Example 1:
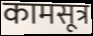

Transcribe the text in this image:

कामसूत्र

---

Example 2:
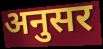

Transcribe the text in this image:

अनुसर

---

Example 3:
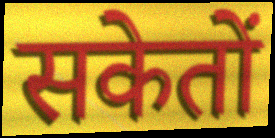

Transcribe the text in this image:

सकेतों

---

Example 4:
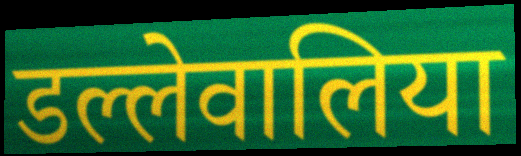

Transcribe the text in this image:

डल्लेवालिया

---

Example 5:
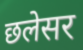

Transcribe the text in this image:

छलेसर